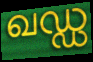
ഖഡ്ഡ